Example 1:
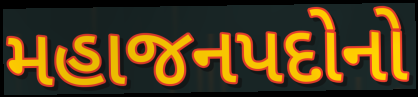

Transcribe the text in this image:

મહાજનપદોનો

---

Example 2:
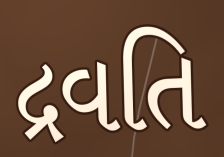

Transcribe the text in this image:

દ્રવતિ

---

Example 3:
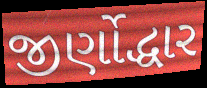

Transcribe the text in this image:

જીર્ણોદ્ધાર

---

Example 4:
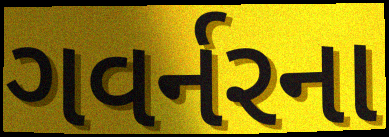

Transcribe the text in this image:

ગવર્નરના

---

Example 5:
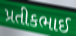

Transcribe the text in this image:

પ્રતીકભાઈ